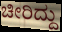
ಚೀರಿದ್ದು